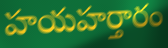
హయహర్తారం